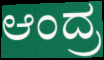
ಆಂದ್ರ